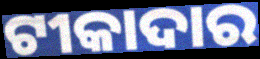
ଟୀକାଦାର